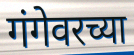
गंगेवरच्या